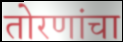
तोरणांचा